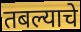
तबल्याचे